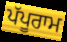
ਪੱਪੂਰਾਮ